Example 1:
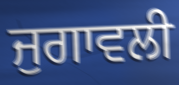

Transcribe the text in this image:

ਜੁਗਾਵਲੀ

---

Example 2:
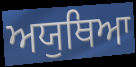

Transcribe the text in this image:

ਅਯੁਥਿਆ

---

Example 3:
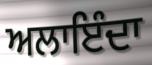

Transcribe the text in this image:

ਅਲਾਇੰਦਾ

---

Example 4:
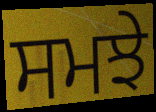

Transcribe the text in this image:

ਸਮਝੇ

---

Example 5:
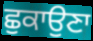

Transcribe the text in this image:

ਛੁਕਾਉਣਾ